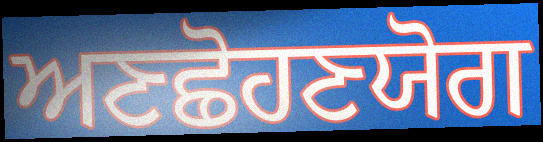
ਅਣਛੋਹਣਯੋਗ